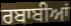
ਰਬਾਬੀਆਂ